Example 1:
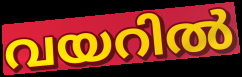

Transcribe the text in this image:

വയറിൽ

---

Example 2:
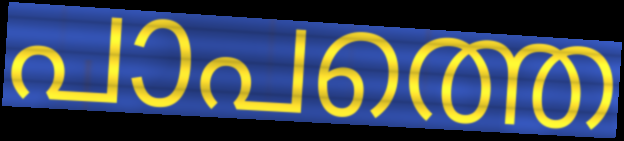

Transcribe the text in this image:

പാപത്തെ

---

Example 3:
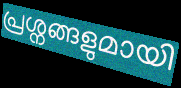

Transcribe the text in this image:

പ്രശ്നങ്ങളുമായി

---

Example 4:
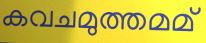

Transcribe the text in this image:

കവചമുത്തമമ്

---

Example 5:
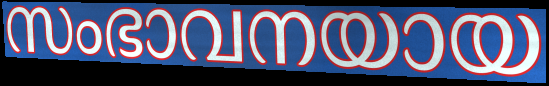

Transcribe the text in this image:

സംഭാവനയായ